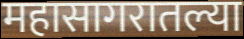
महासागरातल्या